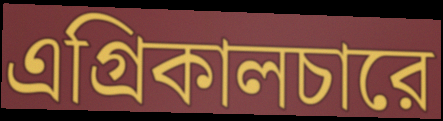
এগ্রিকালচারে